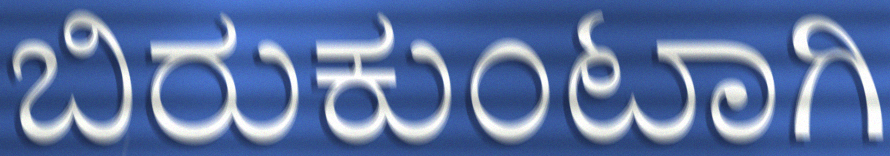
ಬಿರುಕುಂಟಾಗಿ